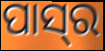
ପାସ୍‍ର